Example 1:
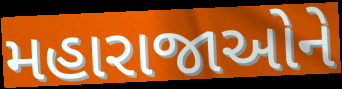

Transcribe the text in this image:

મહારાજાઓને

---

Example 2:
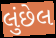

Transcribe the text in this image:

લુંછેલ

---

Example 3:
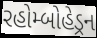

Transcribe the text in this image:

રહોમ્બોહેડ્રન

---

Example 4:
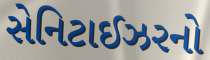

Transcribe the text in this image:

સેનિટાઈઝરનો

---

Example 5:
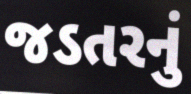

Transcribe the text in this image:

જડતરનું